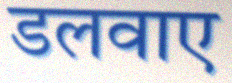
डलवाए